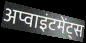
अप्वाइंटमेंट्स